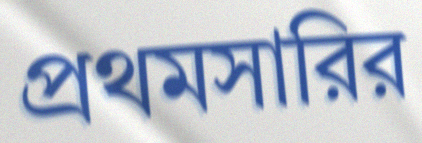
প্রথমসারির